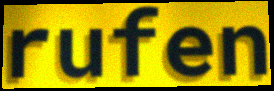
rufen